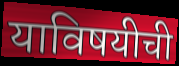
याविषयीची